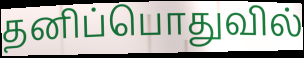
தனிப்பொதுவில்